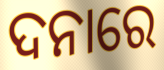
ଦନାରେ